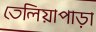
তেলিয়াপাড়া